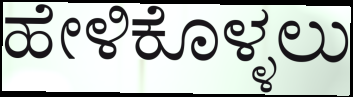
ಹೇಳಿಕೊಳ್ಳಲು